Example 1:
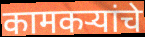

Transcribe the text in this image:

कामकऱ्यांचे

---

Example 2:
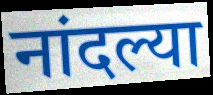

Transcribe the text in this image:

नांदल्या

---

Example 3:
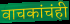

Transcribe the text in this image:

वाचकांचंही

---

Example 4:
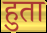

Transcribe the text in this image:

हुता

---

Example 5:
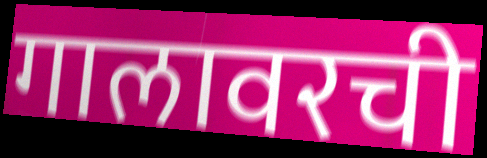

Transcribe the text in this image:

गालावरची